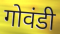
गोवंडी